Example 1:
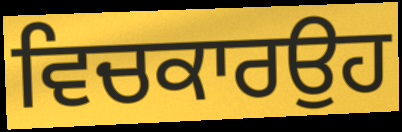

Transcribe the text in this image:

ਵਿਚਕਾਰਉਹ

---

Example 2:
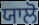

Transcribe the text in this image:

ਯਾਲੋ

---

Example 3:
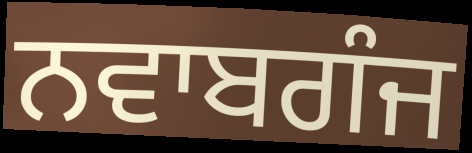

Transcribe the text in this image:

ਨਵਾਬਗੰਜ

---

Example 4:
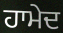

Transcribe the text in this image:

ਹਾਮੇਦ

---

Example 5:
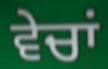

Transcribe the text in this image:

ਵੇਚਾਂ